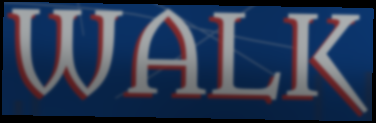
WALK